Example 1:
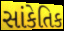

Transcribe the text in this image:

સાંકેતિક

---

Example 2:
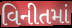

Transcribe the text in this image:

વિનીતમાં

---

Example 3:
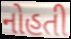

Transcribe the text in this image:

નોહતી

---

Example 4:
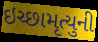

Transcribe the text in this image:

ઇચ્છામૃત્યુની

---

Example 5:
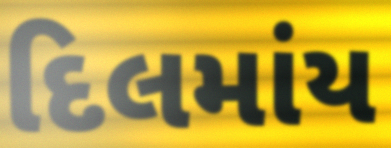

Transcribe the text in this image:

દિલમાંય